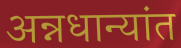
अन्नधान्यांत